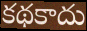
కథకాదు